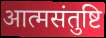
आत्मसंतुष्टि